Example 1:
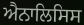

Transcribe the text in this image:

ਐਨਾਲਿਸਿਸ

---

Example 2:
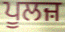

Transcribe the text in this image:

ਪੂਲਜ਼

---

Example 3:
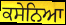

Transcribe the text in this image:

ਕਸੇਨਿਆ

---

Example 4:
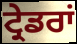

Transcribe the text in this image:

ਟ੍ਰੇਡਰਾਂ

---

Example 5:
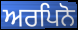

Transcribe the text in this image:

ਅਰਪਿਨੋ